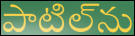
పాటిల్‌ను